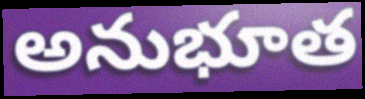
అనుభూత